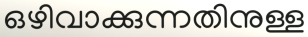
ഒഴിവാക്കുന്നതിനുള്ള